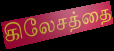
கிலேசத்தை